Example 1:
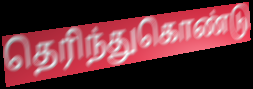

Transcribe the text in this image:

தெரிந்துகொண்டு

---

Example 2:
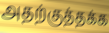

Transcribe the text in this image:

அதற்குத்தக்க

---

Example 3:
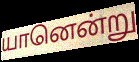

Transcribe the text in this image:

யானென்று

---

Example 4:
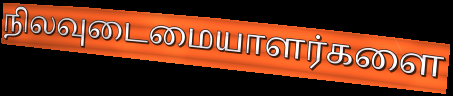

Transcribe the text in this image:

நிலவுடைமையாளர்களை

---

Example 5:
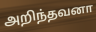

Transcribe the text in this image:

அறிந்தவனா